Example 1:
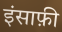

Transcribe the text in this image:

इंसाफ़ी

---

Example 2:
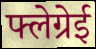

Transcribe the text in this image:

फ्लेग्रेई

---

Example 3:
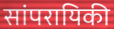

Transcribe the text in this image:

सांपरायिकी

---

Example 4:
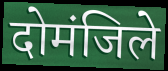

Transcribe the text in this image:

दोमंजिले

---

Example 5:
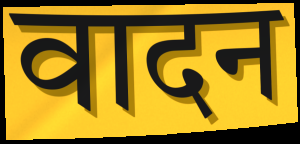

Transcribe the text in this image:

वादन